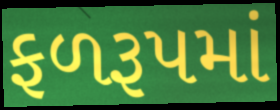
ફળરૂપમાં